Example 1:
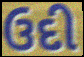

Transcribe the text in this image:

ઉદી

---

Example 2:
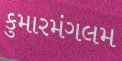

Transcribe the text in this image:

કુમારમંગલમ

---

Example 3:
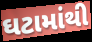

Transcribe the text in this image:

ઘટામાંથી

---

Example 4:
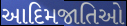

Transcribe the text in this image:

આદિમજાતિઓ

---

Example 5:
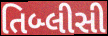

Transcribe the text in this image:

તિબ્લીસી